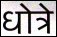
धोत्रे